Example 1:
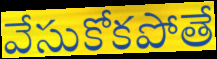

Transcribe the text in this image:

వేసుకోకపోతే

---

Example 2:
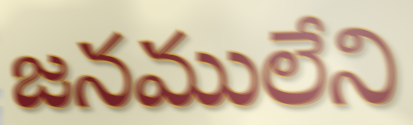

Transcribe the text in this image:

జనములేని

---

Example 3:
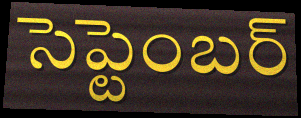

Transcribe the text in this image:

సెప్టెంబర్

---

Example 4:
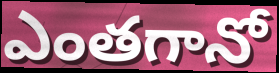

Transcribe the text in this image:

ఎంతగానో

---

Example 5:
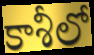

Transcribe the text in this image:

కాశీలో